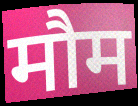
मौम